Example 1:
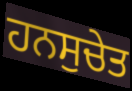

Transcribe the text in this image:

ਹਨਸੁਚੇਤ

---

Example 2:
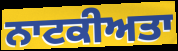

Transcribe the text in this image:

ਨਾਟਕੀਅਤਾ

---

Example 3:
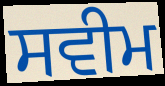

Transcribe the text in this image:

ਸਵੀਮ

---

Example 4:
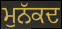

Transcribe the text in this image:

ਮੁਨੱਕਦ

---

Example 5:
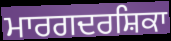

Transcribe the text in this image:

ਮਾਰਗਦਰਸ਼ਿਕਾ